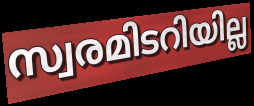
സ്വരമിടറിയില്ല